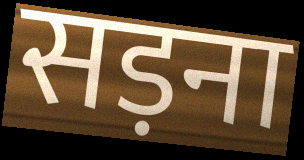
सड़ना